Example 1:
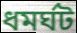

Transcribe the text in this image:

ধমর্ঘট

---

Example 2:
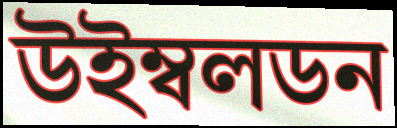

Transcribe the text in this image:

উইম্বলডন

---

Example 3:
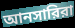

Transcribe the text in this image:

আনসারিরা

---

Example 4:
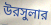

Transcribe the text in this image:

উরসুলার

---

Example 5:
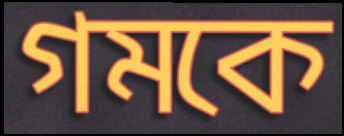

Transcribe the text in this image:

গমকে